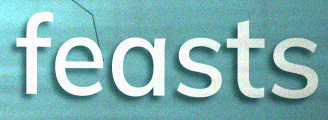
feasts